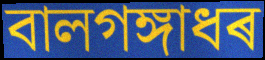
বালগঙ্গাধৰ